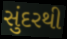
સુંદરથી